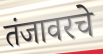
तंजावरचे